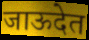
जाऊदेत